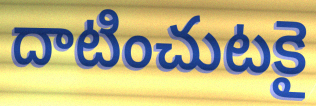
దాటించుటకై